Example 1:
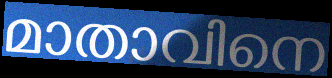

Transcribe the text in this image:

മാതാവിനെ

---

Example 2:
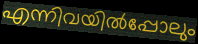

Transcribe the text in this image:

എന്നിവയിൽപ്പോലും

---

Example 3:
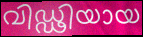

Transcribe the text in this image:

വിഡ്ഢിയായ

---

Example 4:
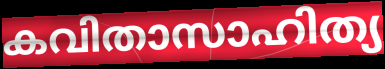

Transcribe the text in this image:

കവിതാസാഹിത്യ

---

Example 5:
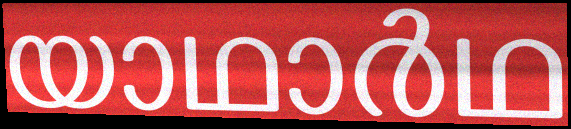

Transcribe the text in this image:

യാഥാർഥ